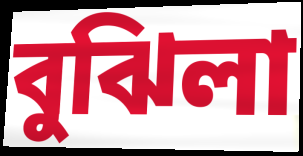
বুঝিলা